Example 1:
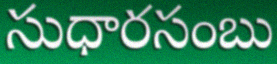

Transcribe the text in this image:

సుధారసంబు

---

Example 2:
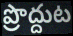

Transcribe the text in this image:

ప్రొద్దుట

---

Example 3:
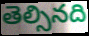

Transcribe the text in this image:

తెల్సినది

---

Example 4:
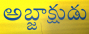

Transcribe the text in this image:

అబ్జాక్షుడు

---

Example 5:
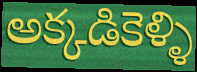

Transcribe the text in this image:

అక్కడికెళ్ళి